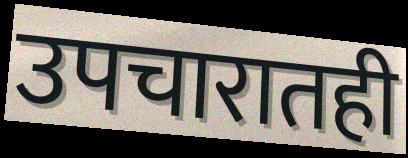
उपचारातही